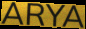
ARYA